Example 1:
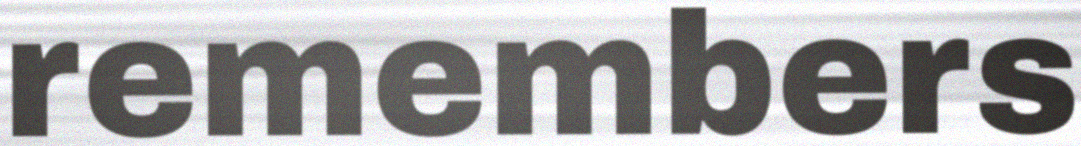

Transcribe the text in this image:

remembers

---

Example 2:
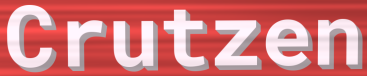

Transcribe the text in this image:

Crutzen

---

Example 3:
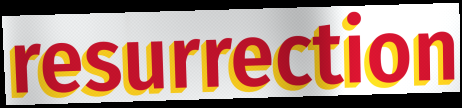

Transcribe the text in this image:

resurrection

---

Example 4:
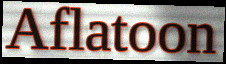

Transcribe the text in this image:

Aflatoon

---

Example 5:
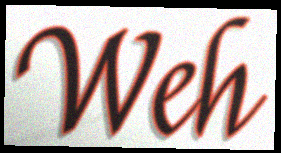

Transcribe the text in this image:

Weh